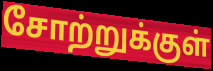
சோற்றுக்குள்